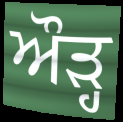
ਔੜ੍ਹ